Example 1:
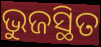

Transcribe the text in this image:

ଭୁଜସ୍ଥିତ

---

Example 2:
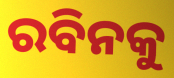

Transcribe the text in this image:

ରବିନକୁ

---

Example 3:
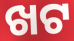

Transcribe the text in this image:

ଖଟ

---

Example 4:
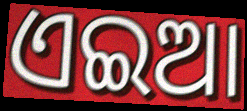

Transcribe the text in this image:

ଏଇଆ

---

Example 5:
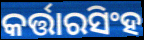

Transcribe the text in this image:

କର୍ତ୍ତାରସିଂହ